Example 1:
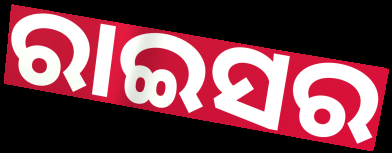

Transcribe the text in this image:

ରାଇସର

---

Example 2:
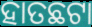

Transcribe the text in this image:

ହାତଛଟା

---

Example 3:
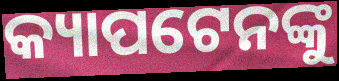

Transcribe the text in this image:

କ୍ୟାପଟେନଙ୍କୁ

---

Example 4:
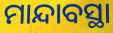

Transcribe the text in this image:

ମାନ୍ଦାବସ୍ଥା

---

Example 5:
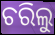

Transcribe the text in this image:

ଚରିଲୁ